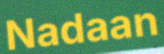
Nadaan